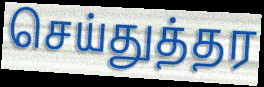
செய்துத்தர